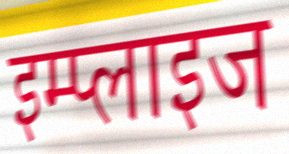
इम्प्लाइज